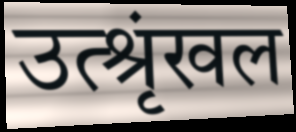
उत्श्रृंखल